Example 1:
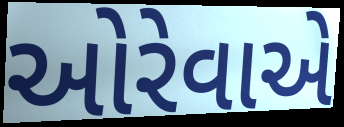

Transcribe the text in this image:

ઓરેવાએ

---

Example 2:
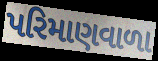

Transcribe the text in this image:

પરિમાણવાળા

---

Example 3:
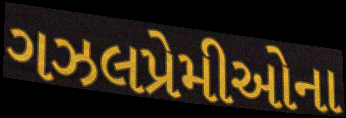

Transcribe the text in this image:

ગઝલપ્રેમીઓના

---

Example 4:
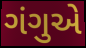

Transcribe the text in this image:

ગંગુએ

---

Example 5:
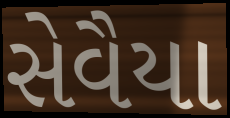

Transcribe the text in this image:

સેવૈયા